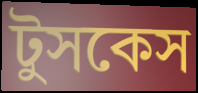
টুসকেস